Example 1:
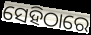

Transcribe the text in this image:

ସେହିଠାରେ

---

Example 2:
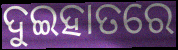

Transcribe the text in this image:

ଦୁଇହାତରେ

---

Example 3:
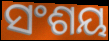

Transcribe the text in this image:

ସଂଶୟ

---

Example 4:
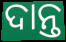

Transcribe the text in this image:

ଦାନ୍ତ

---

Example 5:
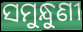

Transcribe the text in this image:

ସମୁନ୍ଧୁଣୀ